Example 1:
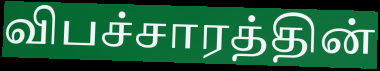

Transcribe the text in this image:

விபச்சாரத்தின்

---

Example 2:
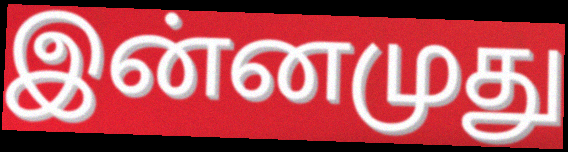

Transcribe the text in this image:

இன்னமுது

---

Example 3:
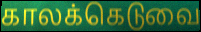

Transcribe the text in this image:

காலக்கெடுவை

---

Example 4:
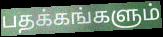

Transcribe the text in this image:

பதக்கங்களும்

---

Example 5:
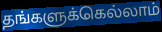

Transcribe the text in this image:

தங்களுக்கெல்லாம்